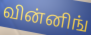
வின்னிங்